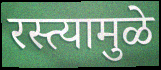
रस्त्यामुळे